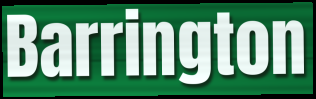
Barrington